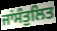
ਜਾਂਸੰਤੁਲਿਤ